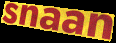
snaan